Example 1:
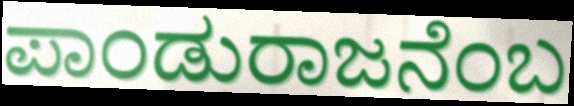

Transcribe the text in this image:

ಪಾಂಡುರಾಜನೆಂಬ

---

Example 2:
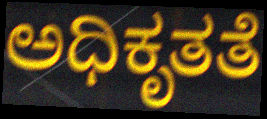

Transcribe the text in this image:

ಅಧಿಕೃತತೆ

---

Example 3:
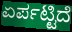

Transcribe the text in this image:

ಏರ್ಪಟ್ಟಿದೆ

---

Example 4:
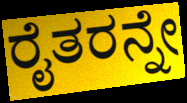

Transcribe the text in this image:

ರೈತರನ್ನೇ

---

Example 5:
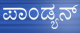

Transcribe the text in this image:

ಪಾಂಡ್ಯನ್